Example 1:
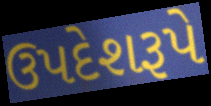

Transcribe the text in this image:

ઉપદેશરૂપે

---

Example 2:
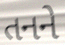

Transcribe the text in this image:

તનને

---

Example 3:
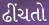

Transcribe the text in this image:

ઢીંચતો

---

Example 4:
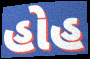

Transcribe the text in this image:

હોહ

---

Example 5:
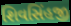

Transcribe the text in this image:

શિવસિંહજી